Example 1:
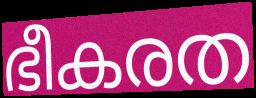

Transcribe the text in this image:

ഭീകരത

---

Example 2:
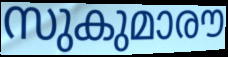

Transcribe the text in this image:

സുകുമാരൗ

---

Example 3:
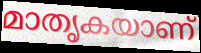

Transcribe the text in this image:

മാതൃകയാണ്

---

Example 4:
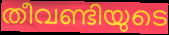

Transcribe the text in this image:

തീവണ്ടിയുടെ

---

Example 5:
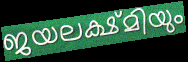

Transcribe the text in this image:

ജയലക്ഷ്മിയും